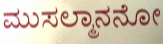
ಮುಸಲ್ಮಾನನೋ